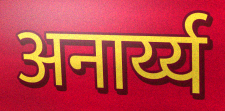
अनार्य्य